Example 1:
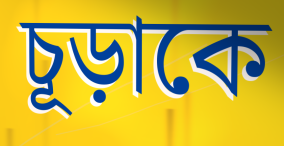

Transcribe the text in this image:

চূড়াকে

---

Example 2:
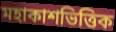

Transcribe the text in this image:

মহাকাশভিত্তিক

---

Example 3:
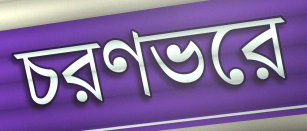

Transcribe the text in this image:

চরণভরে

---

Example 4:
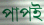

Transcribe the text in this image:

পাপই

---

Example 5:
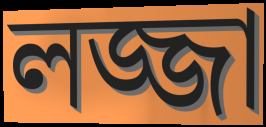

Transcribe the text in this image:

লজ্জা